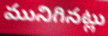
మునిగినట్లు